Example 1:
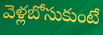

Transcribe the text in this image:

వెళ్లబోసుకుంటే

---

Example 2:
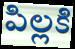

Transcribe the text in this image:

పిల్లకి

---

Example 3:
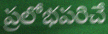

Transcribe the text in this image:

ప్రలోభపరిచే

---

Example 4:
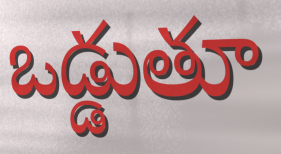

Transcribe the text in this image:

ఒడ్డుతూ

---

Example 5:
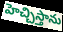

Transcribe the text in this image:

హెచ్చిస్తాను